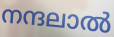
നന്ദലാൽ